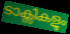
ടാക്സികളും